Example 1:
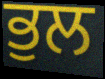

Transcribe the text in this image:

ਭੁਲ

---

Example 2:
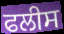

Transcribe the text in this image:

ਫਲੀਸ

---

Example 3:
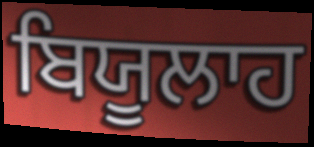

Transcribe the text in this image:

ਬਿਯੂਲਾਹ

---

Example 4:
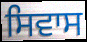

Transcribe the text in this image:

ਸਿਵਾਸ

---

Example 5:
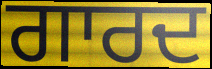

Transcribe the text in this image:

ਗਾਰਦ